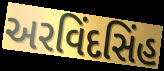
અરવિંદસિંહ